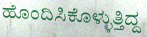
ಹೊಂದಿಸಿಕೊಳ್ಳುತ್ತಿದ್ದ